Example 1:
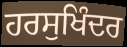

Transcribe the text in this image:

ਹਰਸੁਖਿੰਦਰ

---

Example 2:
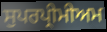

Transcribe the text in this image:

ਸੁਪਰਪ੍ਰੀਮੀਅਮ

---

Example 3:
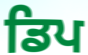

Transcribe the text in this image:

ਡਿਪ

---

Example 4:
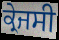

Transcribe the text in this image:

ਕ੍ਰੇਜਸੀ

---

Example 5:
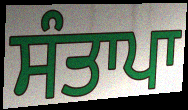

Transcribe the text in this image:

ਸੰਤਾਪਾ